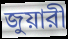
জুয়ারী